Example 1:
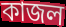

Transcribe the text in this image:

কাজল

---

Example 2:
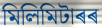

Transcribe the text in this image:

মিলিমিটাৰৰ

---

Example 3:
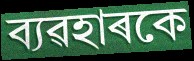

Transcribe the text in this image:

ব্যৱহাৰকে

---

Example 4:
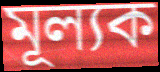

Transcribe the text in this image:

মূল্যক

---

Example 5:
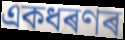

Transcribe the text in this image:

একধৰণৰ